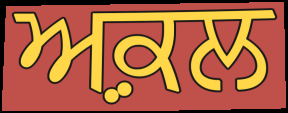
ਅ਼ਕ਼ਲ